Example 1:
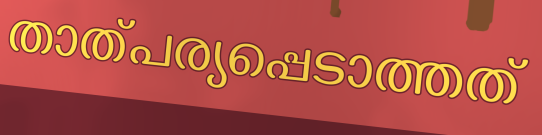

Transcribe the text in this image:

താത്പര്യപ്പെടാത്തത്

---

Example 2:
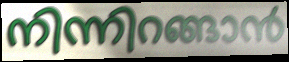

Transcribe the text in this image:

നിന്നിറങ്ങാൻ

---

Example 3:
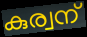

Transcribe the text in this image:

കുര്വന്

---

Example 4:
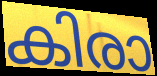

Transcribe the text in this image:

കിരാ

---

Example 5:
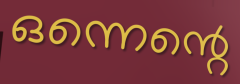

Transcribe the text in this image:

ഒന്നെന്റെ